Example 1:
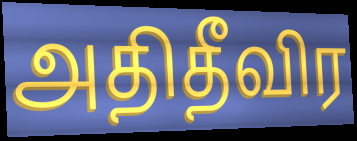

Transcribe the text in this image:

அதிதீவிர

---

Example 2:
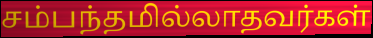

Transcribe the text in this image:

சம்பந்தமில்லாதவர்கள்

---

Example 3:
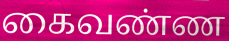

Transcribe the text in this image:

கைவண்ண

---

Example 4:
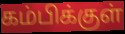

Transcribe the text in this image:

கம்பிக்குள்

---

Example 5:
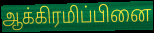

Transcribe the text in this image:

ஆக்கிரமிப்பினை